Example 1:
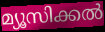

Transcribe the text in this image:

മ്യൂസിക്കൽ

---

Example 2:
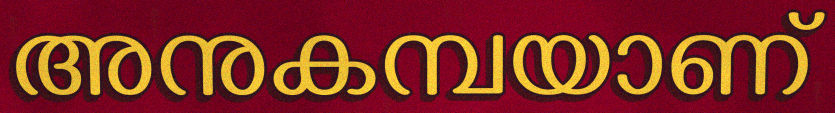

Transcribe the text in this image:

അനുകമ്പയാണ്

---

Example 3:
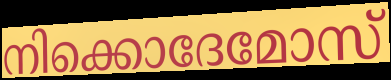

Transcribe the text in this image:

നിക്കൊദേമോസ്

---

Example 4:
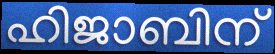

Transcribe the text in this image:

ഹിജാബിന്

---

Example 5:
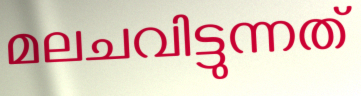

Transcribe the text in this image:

മലചവിട്ടുന്നത്